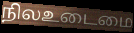
நிலஉடைமை